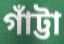
গাঁট্টা